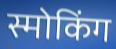
स्मोकिंग